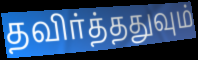
தவிர்த்ததுவும்